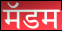
मॅडम